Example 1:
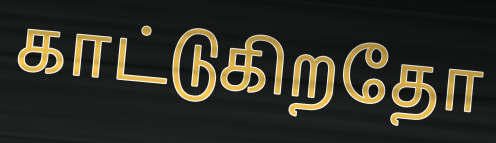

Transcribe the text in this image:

காட்டுகிறதோ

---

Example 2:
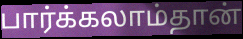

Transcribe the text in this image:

பார்க்கலாம்தான்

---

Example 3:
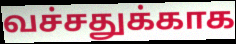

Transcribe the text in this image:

வச்சதுக்காக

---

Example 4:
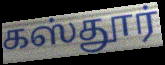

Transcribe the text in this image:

கஸ்தூர்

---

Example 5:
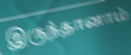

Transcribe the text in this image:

இருந்தானாம்